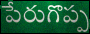
పేరుగొప్ప